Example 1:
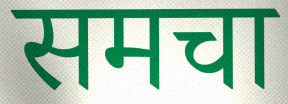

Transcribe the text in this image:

समचा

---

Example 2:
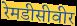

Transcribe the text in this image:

रेमडीसीवीर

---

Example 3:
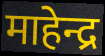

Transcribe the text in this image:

माहेन्द्र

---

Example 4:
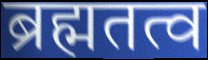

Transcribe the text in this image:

ब्रह्मतत्व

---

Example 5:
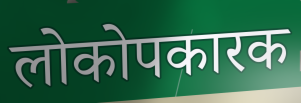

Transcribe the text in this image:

लोकोपकारक